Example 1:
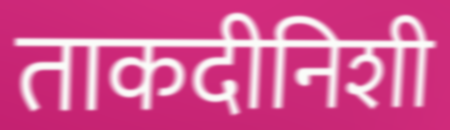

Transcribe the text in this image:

ताकदीनिशी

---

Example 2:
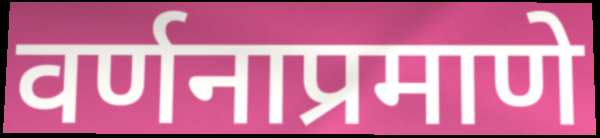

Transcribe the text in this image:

वर्णनाप्रमाणे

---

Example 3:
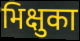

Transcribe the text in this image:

भिक्षुका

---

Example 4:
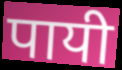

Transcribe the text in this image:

पायी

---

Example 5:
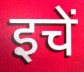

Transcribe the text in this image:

इचें